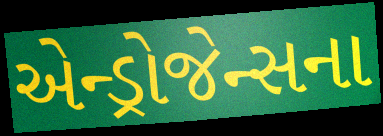
એન્ડ્રોજેન્સના